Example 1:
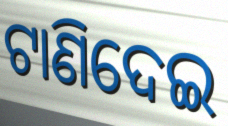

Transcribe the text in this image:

ଟାଣିଦେଇ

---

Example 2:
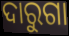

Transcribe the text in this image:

ଦାରୁଗା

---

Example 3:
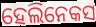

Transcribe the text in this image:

ହେଲିନେକସ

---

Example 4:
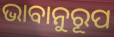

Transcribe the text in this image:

ଭାବାନୁରୂପ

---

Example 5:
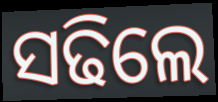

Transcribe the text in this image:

ସଢିଲେ